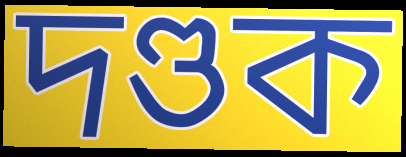
দণ্ডক